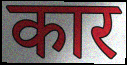
कार